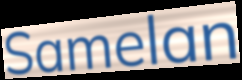
Samelan